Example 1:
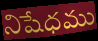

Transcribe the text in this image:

నిషేధము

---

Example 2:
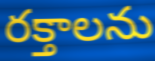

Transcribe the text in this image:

రక్తాలను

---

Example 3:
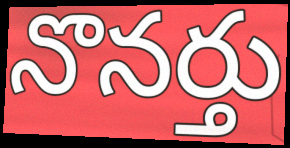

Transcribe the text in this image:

నొనర్తు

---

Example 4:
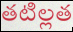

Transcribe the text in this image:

తటిల్లత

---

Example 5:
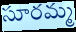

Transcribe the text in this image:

సూరమ్మ